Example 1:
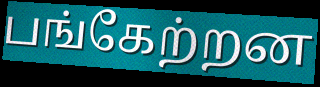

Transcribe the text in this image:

பங்கேற்றன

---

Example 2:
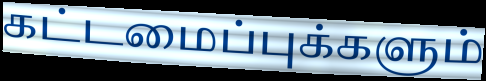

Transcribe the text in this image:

கட்டமைப்புக்களும்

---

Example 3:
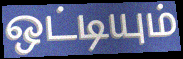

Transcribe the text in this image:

ஒட்டியும்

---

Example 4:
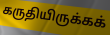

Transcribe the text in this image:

கருதியிருக்கக்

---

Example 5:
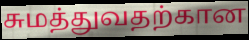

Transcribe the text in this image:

சுமத்துவதற்கான